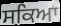
ਸਕਿਆ